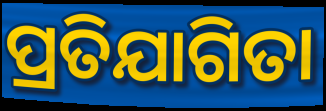
ପ୍ରତିଯାଗିତା